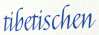
tibetischen